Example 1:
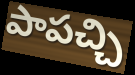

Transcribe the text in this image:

పాపచ్చి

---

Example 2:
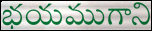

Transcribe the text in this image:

భయముగాని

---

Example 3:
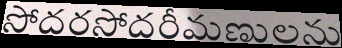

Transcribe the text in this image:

సోదరసోదరీమణులను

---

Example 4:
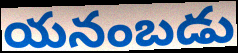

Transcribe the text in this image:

యనంబడు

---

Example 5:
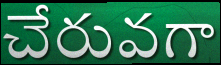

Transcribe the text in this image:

చేరువగా